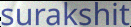
surakshit